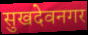
सुखदेवनगर